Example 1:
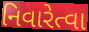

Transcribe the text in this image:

નિવારેત્વા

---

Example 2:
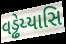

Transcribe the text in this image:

વડ્ઢેય્યાસિ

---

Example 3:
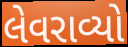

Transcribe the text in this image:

લેવરાવ્યો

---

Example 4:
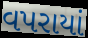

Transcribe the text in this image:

વપરાયાં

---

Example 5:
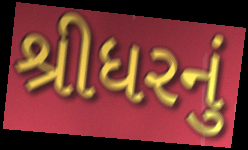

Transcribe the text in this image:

શ્રીધરનું